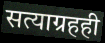
सत्याग्रहही